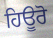
ਹਿਊਰੋ